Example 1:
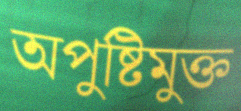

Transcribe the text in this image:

অপুষ্টিমুক্ত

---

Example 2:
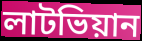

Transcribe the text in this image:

লাটভিয়ান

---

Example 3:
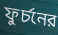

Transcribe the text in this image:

ফুর্চনের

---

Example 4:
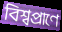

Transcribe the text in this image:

বিশ্বপ্রাণে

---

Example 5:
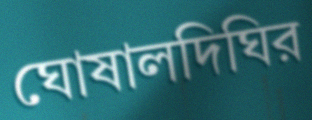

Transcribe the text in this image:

ঘোষালদিঘির